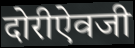
दोरीऐवजी